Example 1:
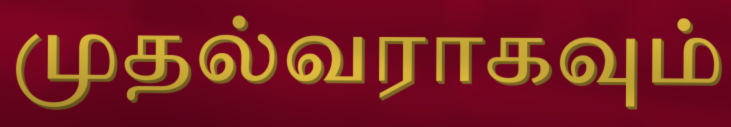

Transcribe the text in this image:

முதல்வராகவும்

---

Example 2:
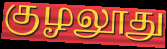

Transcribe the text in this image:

குழலூது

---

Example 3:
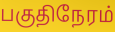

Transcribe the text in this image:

பகுதிநேரம்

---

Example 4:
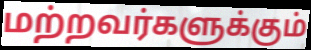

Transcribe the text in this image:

மற்றவர்களுக்கும்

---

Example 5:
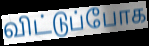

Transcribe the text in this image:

விட்டுப்போக